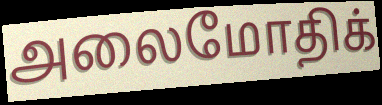
அலைமோதிக்